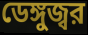
ডেঙ্গুজ্বর